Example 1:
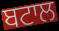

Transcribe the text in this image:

ਬਟਾਲ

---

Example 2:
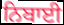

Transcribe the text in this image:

ਨਿਬਾਈ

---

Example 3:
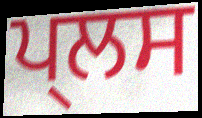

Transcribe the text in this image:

ਪ੍ਲਸ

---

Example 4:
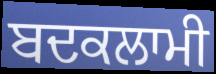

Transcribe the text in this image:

ਬਦਕਲਾਮੀ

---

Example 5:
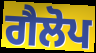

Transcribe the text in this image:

ਗੈਲੋਪ